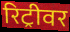
रिट्रीवर